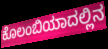
ಕೊಲಂಬಿಯಾದಲ್ಲಿನ